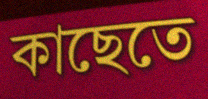
কাছেতে